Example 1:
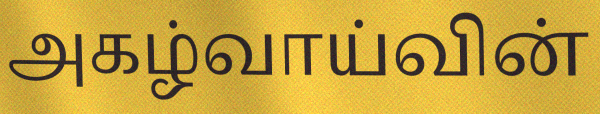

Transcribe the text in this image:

அகழ்வாய்வின்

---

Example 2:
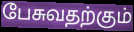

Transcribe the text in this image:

பேசுவதற்கும்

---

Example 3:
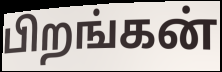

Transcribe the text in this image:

பிறங்கன்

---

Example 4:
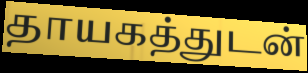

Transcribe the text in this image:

தாயகத்துடன்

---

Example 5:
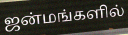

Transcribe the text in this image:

ஜன்மங்களில்